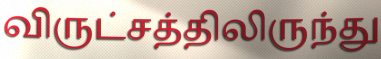
விருட்சத்திலிருந்து